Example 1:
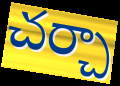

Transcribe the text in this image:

చర్చా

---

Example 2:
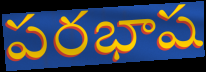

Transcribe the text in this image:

పరభాష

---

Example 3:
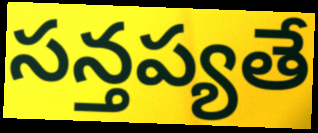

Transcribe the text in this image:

సన్తప్యతే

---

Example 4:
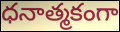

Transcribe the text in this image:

ధనాత్మకంగా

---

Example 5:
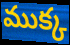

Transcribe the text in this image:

ముక్క